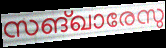
സങ്ഖാരേസു